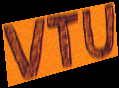
VTU